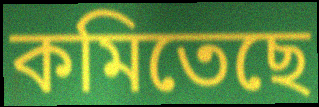
কমিতেছে